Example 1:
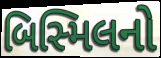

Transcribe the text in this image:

બિસ્મિલનો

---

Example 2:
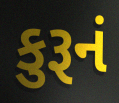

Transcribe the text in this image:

કુરૂનં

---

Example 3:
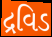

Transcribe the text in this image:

દ્રવિડ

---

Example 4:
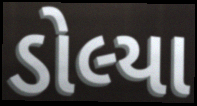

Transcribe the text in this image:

ડોલ્યા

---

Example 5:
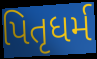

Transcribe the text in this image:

પિતૃધર્મ